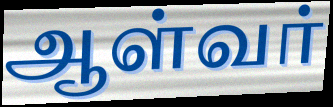
ஆள்வர்